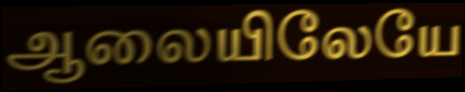
ஆலையிலேயே